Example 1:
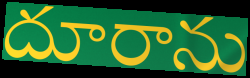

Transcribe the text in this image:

దూరాను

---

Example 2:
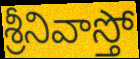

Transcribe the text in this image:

శ్రీనివాస్తో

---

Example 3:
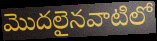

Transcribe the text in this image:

మొదలైనవాటిలో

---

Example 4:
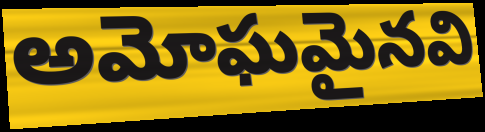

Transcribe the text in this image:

అమోఘమైనవి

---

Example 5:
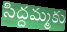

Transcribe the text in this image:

సిద్దమ్మకు